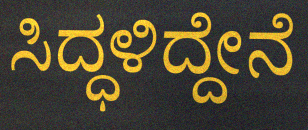
ಸಿದ್ಧಳಿದ್ದೇನೆ